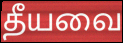
தீயவை